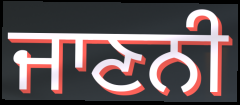
ਜਾਣਨੀ